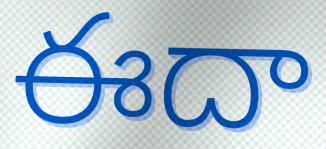
ఈదా